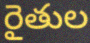
రైతుల